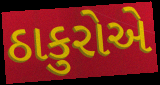
ઠાકુરોએ